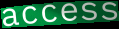
access